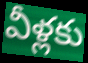
వీళ్లకు